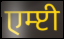
एम्प्टी